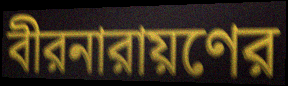
বীরনারায়ণের